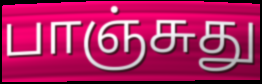
பாஞ்சுது